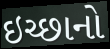
ઇચ્છાનો